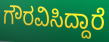
ಗೌರವಿಸಿದ್ದಾರೆ